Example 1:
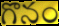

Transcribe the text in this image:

గొనం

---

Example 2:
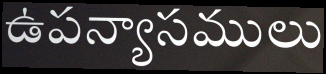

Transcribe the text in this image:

ఉపన్యాసములు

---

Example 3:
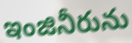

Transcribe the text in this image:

ఇంజినీరును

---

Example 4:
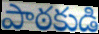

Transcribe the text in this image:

పాఠకుడి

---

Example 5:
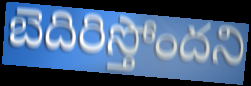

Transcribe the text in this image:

బెదిరిస్తోందని